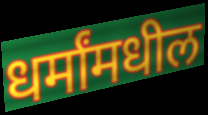
धर्मांमधील